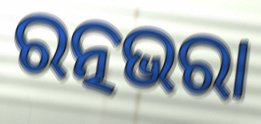
ରତ୍ନଭରା